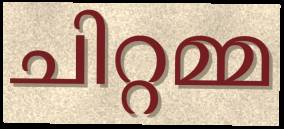
ചിറ്റമ്മ